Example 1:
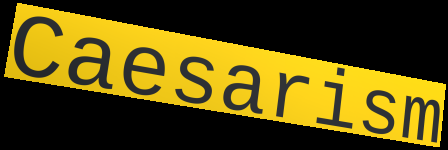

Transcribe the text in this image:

Caesarism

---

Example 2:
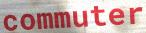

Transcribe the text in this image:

commuter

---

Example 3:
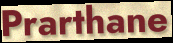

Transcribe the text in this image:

Prarthane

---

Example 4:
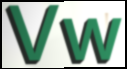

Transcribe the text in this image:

Vw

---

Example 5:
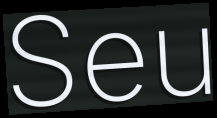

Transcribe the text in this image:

Seu